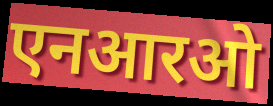
एनआरओ